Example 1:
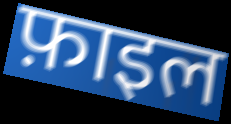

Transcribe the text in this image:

फ़ाइल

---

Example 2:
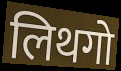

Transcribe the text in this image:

लिथगो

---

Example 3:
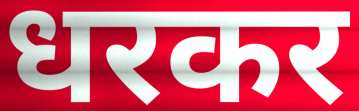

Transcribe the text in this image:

धरकर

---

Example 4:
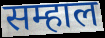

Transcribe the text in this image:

सम्हाल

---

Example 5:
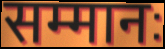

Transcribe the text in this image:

सम्मानः